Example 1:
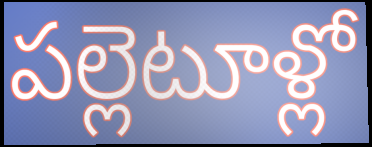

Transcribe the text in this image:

పల్లెటూళ్లో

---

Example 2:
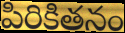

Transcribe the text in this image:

పిరికితనం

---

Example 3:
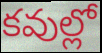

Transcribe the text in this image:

కవుల్లో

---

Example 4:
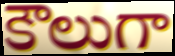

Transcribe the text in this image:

కౌలుగా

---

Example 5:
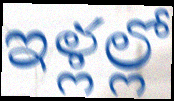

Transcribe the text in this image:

ఇళ్లల్లో